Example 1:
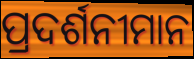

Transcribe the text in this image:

ପ୍ରଦର୍ଶନୀମାନ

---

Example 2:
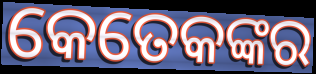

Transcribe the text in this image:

କେତେକଙ୍କର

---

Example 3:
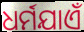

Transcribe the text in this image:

ଧର୍ମଯାଏଁ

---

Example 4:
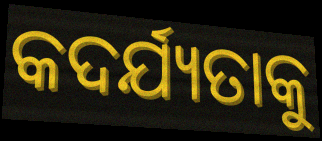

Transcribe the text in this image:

କଦର୍ଯ୍ୟତାକୁ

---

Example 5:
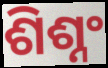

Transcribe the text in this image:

ଶିଶ୍ନଂ